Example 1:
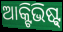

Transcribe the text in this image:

ଆକ୍ଟିଭିଷ୍ଟ୍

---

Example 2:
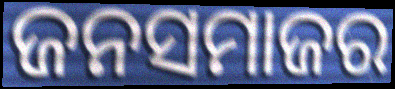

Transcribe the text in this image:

ଜନସମାଜର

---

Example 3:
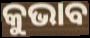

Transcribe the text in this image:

କୁଭାବ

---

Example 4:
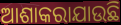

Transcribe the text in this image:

ଆଶାକରାଯାଉଛି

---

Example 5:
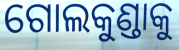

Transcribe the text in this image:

ଗୋଲକୁଣ୍ଡାକୁ